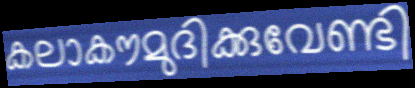
കലാകൗമുദിക്കുവേണ്ടി